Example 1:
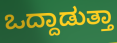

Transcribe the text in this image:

ಒದ್ದಾಡುತ್ತಾ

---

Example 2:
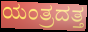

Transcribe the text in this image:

ಯಂತ್ರದತ್ತ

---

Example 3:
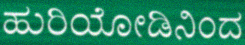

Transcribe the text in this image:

ಹುರಿಯೋಡಿನಿಂದ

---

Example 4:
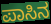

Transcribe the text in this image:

ಪಾಸಿನ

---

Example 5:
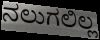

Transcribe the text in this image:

ನಲುಗಲಿಲ್ಲ